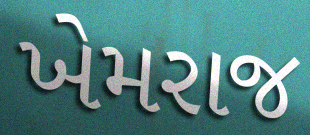
ખેમરાજ